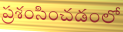
ప్రశంసించడంలో